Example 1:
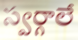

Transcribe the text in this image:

స్వర్గాలే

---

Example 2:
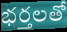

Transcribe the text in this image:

భర్తలతో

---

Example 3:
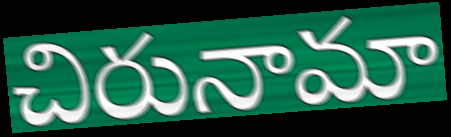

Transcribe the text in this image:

చిరునామా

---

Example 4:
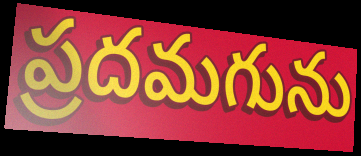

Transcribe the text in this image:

ప్రదమగును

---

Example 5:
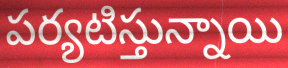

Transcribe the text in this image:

పర్యటిస్తున్నాయి